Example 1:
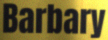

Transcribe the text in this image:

Barbary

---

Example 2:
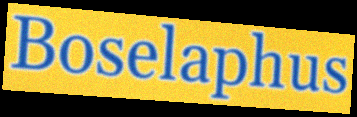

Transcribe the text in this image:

Boselaphus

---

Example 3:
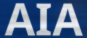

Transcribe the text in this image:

AIA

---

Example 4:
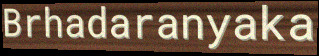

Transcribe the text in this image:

Brhadaranyaka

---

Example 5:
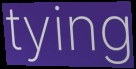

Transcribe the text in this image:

tying